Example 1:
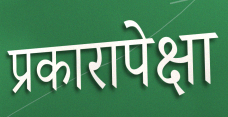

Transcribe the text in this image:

प्रकारापेक्षा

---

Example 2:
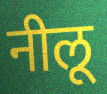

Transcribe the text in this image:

नीलू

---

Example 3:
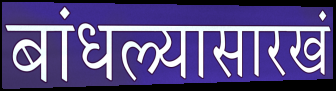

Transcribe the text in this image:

बांधल्यासारखं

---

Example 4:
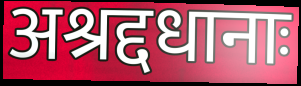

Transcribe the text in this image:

अश्रद्दधानाः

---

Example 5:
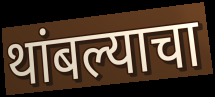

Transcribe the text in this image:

थांबल्याचा